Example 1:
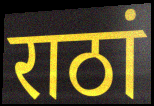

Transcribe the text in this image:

राठां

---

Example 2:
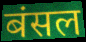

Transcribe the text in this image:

बंसल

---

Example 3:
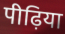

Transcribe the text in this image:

पीढ़िया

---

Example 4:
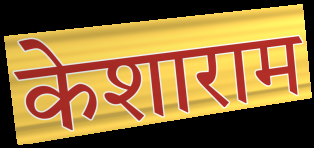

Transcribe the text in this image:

केशाराम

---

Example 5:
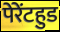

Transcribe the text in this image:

पेरेंटहुड